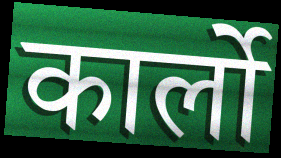
कार्लो